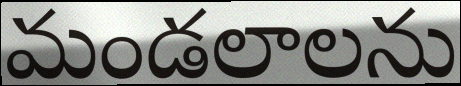
మండలాలను